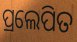
ପ୍ରଲେପିତ